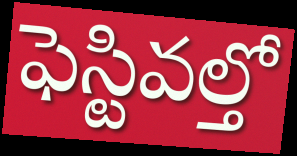
ఫెస్టివల్తో